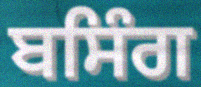
ਬਸਿੰਗ